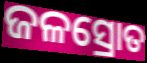
ଜଳସ୍ରୋତ